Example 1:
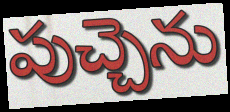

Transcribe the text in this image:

పుచ్చెను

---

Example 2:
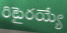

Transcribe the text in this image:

రిటైరయ్యే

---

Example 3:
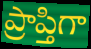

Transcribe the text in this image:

ప్రాప్తిగా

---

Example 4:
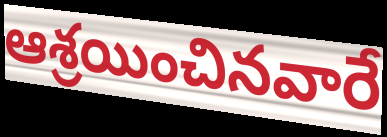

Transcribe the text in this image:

ఆశ్రయించినవారే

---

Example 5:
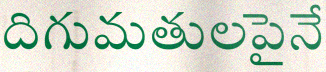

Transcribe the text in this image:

దిగుమతులపైనే